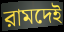
রামদেই